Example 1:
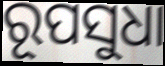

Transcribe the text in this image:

ରୂପସୁଧା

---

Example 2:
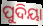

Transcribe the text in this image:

ପୁଦିୟା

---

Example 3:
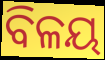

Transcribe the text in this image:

ବିଳୟ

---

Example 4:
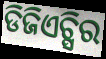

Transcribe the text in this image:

ଡିଜିଏଚ୍ସିର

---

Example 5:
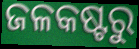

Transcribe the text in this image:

ଜଳକଷ୍ଟରୁ